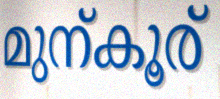
മുന്കൂര്